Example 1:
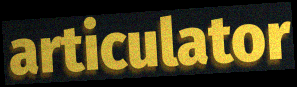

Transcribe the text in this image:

articulator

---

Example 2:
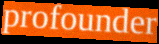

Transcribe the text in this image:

profounder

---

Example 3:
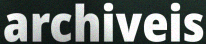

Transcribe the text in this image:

archiveis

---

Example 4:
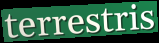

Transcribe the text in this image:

terrestris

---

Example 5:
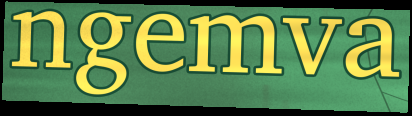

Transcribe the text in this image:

ngemva